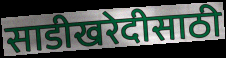
साडीखरेदीसाठी